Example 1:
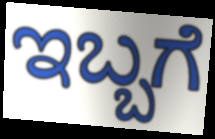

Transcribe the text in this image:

ಇಬ್ಬಗೆ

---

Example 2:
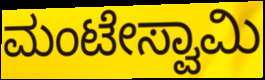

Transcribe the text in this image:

ಮಂಟೇಸ್ವಾಮಿ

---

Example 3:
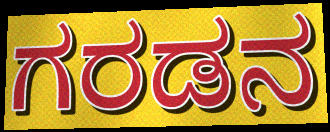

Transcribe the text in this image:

ಗರಡನ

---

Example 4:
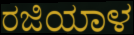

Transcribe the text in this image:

ರಜಿಯಾಳ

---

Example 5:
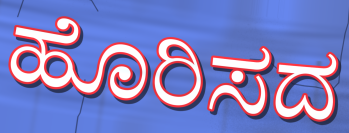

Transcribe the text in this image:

ಹೊರಿಸದ